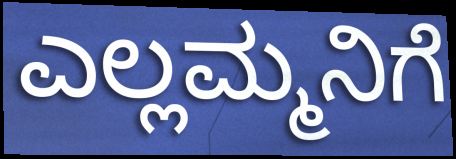
ಎಲ್ಲಮ್ಮನಿಗೆ